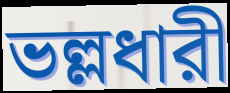
ভল্লধারী